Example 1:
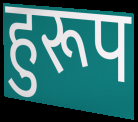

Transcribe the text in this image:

हुरूप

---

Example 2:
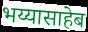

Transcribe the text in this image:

भय्यासाहेब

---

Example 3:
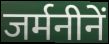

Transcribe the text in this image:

जर्मनीनें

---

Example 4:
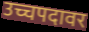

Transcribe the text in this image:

उच्चपदावर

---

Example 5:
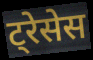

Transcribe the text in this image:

ट्रेसेस